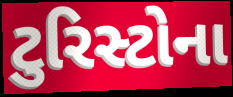
ટુરિસ્ટોના